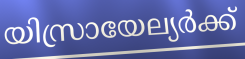
യിസ്രായേല്യർക്ക്